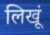
लिखूं